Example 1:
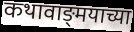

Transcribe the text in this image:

कथावाङ्मयाच्या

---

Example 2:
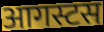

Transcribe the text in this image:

आगस्टस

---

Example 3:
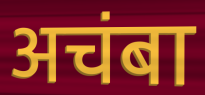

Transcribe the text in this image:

अचंबा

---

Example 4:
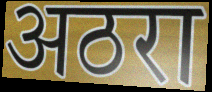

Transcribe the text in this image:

अठरा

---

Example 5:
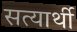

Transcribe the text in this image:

सत्यार्थी